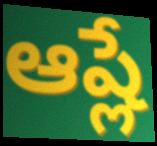
ఆష్లే